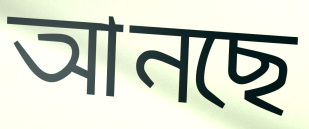
আনছে